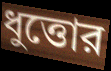
ধুত্তোর